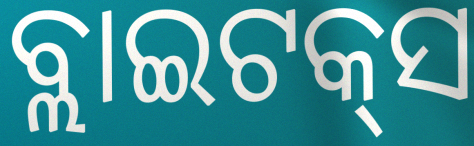
ବ୍ଲାଇଟକ୍‌ସ